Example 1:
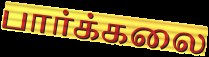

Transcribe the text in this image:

பார்க்கலை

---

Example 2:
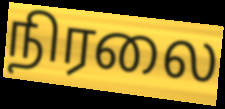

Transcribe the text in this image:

நிரலை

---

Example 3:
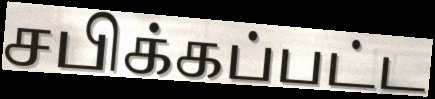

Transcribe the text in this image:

சபிக்கப்பட்ட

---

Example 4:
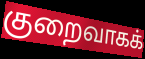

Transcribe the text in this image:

குறைவாகக்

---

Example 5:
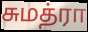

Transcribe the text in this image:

சுமத்ரா